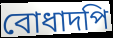
বোধাদপি